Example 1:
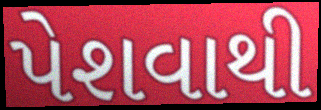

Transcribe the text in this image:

પેશવાથી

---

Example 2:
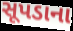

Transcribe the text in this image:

સૂપડાના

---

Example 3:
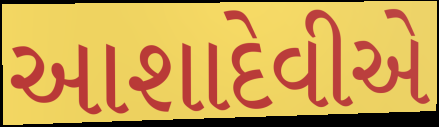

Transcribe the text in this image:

આશાદેવીએ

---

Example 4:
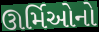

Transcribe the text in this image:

ઊર્મિઓનો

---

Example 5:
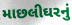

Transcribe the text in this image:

માછલીઘરનું